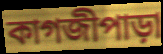
কাগজীপাড়া